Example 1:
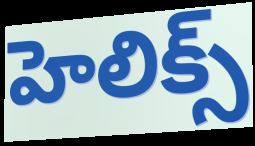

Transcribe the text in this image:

హెలిక్స్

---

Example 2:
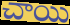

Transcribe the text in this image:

చాయి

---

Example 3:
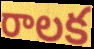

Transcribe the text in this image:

రాలక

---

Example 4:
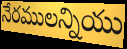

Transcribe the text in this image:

నేరములన్నియు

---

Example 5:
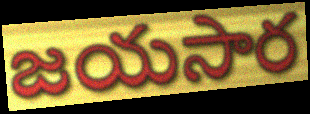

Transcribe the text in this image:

జయసార